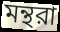
মন্থরা